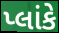
પ્લાંકે